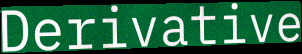
Derivative